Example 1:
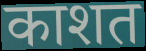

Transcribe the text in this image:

काशत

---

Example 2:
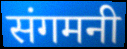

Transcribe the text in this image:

संगमनी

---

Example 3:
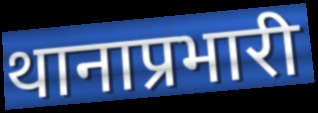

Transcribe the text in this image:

थानाप्रभारी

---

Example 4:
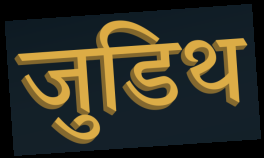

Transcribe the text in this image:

जुडिथ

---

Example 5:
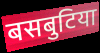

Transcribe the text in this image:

बसबुटिया